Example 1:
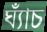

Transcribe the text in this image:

ঘ্যাঁচ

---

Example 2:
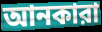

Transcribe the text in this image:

আনকারা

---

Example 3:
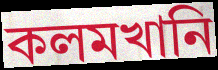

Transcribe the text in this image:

কলমখানি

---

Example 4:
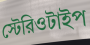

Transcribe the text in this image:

স্টেরিওটাইপ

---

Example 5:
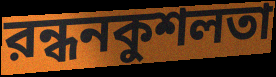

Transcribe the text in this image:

রন্ধনকুশলতা